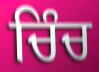
ਚਿੰਚ